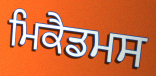
ਮਿਕੈਡਮਸ